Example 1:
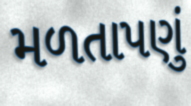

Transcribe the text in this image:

મળતાપણું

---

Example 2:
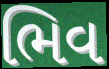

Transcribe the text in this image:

ભિવ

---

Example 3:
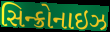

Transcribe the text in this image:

સિન્ક્રોનાઇઝ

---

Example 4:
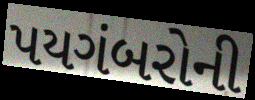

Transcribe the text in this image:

પયગંબરોની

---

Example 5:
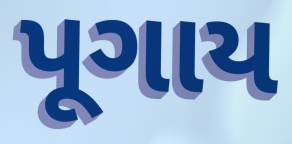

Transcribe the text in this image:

પૂગાય